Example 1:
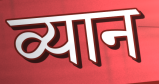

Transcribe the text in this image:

व्यान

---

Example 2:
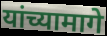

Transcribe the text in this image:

यांच्यामागे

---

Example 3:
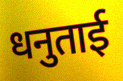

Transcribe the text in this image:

धनुताई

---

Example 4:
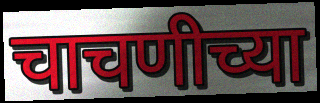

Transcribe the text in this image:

चाचणीच्या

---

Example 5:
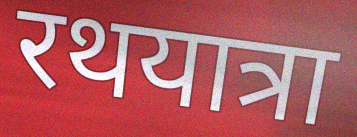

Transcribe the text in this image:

रथयात्रा